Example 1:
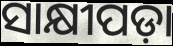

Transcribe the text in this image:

ସାକ୍ଷୀପଡ଼ା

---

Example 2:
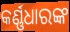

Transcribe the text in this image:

କର୍ଣ୍ଣଧାରଙ୍କ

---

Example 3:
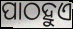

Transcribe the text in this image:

ପାଠହୁଏ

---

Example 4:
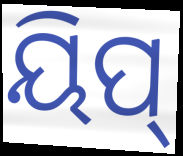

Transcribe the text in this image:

ୟିପ୍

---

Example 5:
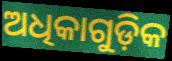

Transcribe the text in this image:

ଅଧିକାଗୁଡ଼ିକ